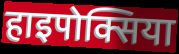
हाइपोक्सिया